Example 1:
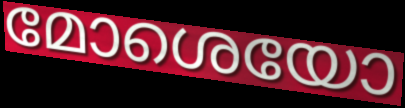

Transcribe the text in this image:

മോശെയോ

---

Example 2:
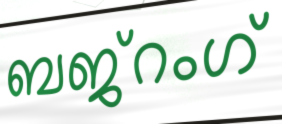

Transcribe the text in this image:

ബജ്റംഗ്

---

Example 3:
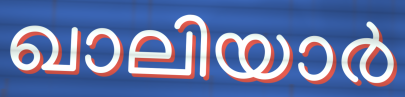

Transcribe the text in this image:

ഖാലിയാർ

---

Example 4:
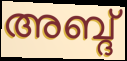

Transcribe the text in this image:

അബ്ദ്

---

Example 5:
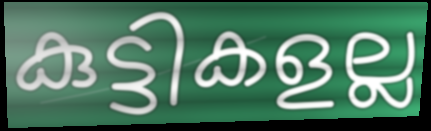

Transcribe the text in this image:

കുട്ടികളല്ല